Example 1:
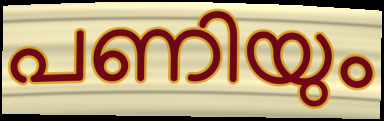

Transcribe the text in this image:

പണിയും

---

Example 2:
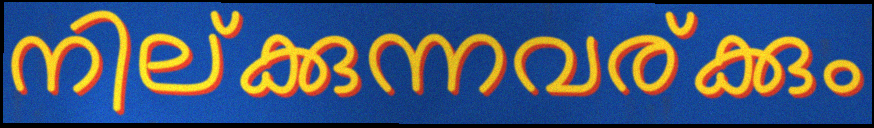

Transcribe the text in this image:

നില്ക്കുന്നവര്ക്കും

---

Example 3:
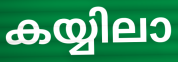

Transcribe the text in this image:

കയ്യിലാ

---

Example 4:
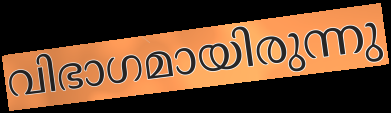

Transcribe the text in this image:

വിഭാഗമായിരുന്നു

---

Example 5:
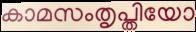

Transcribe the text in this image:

കാമസംതൃപ്തിയോ